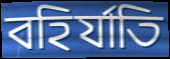
বহির্যাতি